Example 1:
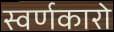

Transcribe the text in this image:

स्वर्णकारो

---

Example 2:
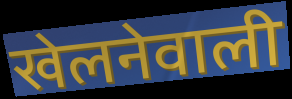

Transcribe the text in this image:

खेलनेवाली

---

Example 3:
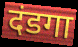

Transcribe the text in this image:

दंडगा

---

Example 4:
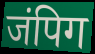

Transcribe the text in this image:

जंपिग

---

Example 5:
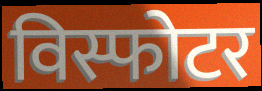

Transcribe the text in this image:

विस्फोटर